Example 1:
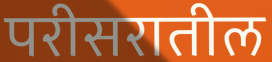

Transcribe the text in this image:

परीसरातील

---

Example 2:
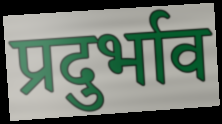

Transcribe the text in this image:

प्रदुर्भाव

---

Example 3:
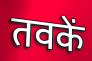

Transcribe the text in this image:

तवकें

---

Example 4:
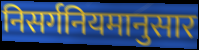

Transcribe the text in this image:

निसर्गनियमानुसार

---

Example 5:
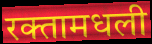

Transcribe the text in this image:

रक्तामधली